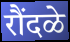
रौंदळे